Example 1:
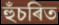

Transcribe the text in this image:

হুঁচৰিত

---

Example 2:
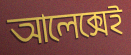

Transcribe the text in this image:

আলেক্সেই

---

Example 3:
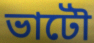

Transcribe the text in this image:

ভাটৌ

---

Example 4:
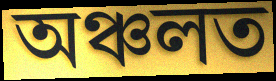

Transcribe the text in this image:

অঞ্চলত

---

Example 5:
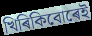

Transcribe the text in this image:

খিৰিকিবোৰেই